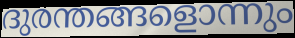
ദുരന്തങ്ങളൊന്നും